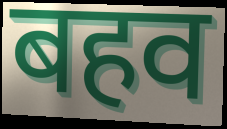
बहव